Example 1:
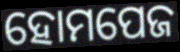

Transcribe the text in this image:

ହୋମପେଜ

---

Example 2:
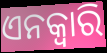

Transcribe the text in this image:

ଏନକ୍ଵାରି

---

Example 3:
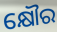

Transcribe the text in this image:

କ୍ଷୌର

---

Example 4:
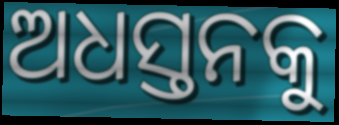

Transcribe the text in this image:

ଅଧସ୍ତନକୁ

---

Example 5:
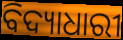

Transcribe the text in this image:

ବିଦ୍ୟାଧାରୀ